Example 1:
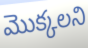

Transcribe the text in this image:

మొక్కలని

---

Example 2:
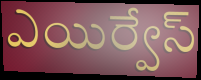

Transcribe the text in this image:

ఎయిర్వేస్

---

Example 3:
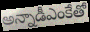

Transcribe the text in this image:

అన్నాడీఎంకేతో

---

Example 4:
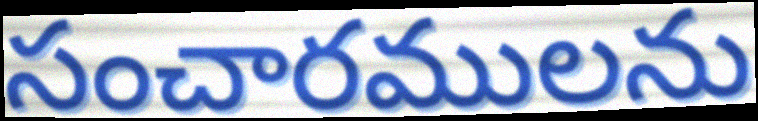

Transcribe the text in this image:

సంచారములను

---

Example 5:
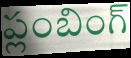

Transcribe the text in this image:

ప్లంబింగ్